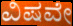
ವಿಷವೇ